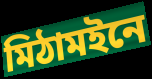
মিঠামইনে